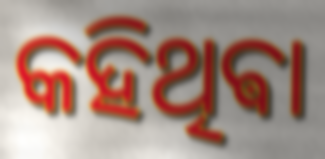
କହିଥିଵା